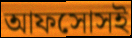
আফসোসই